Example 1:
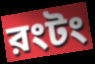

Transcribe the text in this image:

রংটং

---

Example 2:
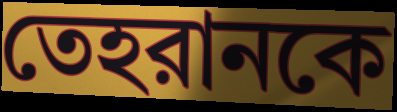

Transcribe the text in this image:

তেহরানকে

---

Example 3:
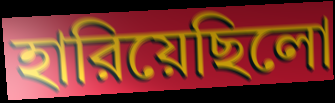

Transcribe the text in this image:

হারিয়েছিলো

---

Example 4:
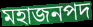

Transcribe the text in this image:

মহাজনপদ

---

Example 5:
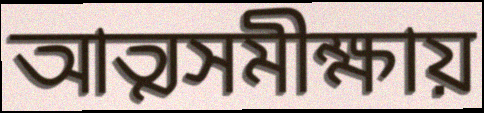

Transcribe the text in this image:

আত্মসমীক্ষায়